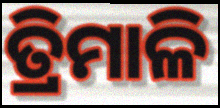
ତ୍ରିମାଳି